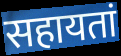
सहायतां